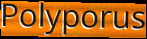
Polyporus